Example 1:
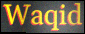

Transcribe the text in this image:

Waqid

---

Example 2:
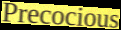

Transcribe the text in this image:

Precocious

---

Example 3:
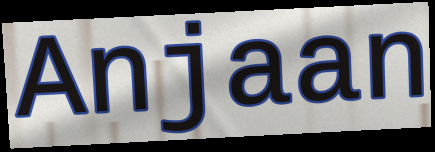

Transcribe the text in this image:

Anjaan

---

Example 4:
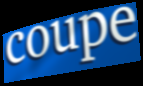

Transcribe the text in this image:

coupe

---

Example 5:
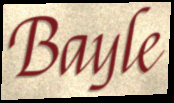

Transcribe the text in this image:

Bayle